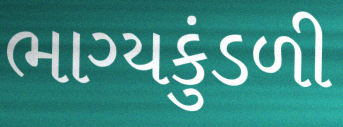
ભાગ્યકુંડળી